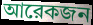
আরেকজন